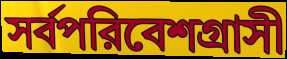
সর্বপরিবেশগ্রাসী